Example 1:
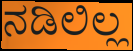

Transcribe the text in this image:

ನಡಿಲಿಲ್ಲ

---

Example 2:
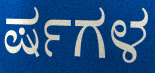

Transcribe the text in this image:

ರ್ಷಗಳ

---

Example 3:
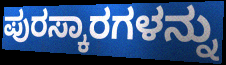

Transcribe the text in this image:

ಪುರಸ್ಕಾರಗಳನ್ನು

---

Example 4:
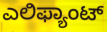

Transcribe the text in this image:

ಎಲಿಫ್ಯಾಂಟ್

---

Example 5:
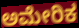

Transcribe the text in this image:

ಅಮೇರಿಕ